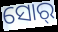
ସୋର୍